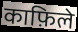
काफ़िले